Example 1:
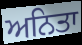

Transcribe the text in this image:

ਅਨਿਤਾ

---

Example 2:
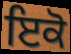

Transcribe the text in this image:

ਇਕੋ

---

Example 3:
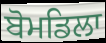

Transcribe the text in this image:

ਬੋਮਡਿਲਾ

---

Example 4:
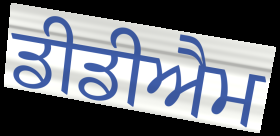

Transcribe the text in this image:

ਡੀਡੀਐਮ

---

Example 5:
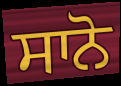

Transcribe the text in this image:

ਸਾਨੋ